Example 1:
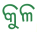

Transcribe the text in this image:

କୁଳ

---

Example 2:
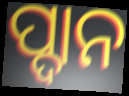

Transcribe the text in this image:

ପ୍ଦାନ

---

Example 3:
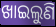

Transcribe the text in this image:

ଖାଇଲୁଣି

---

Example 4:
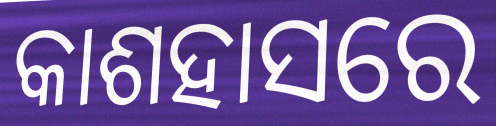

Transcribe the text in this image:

କାଶହାସରେ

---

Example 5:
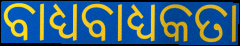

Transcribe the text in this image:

ବାଧ୍ୟବାଧ୍ୟକତା